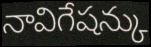
నావిగేషన్కు